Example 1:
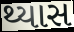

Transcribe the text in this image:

થ્યાસ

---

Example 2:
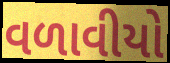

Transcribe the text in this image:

વળાવીયો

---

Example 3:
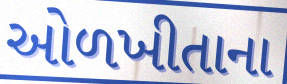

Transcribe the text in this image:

ઓળખીતાના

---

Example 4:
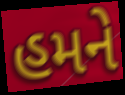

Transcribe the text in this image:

હમને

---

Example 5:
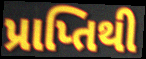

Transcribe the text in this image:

પ્રાપ્તિથી